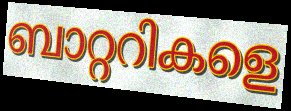
ബാറ്ററികളെ